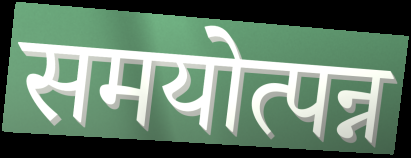
समयोत्पन्न